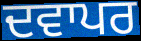
ਦਵਾਪਰ